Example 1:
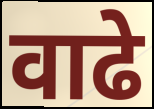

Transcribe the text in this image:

वाढे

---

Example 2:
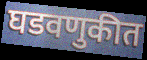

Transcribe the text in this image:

घडवणुकीत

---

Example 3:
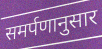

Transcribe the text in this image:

समर्पणानुसार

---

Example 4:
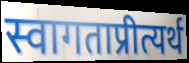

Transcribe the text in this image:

स्वागताप्रीत्यर्थ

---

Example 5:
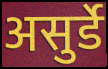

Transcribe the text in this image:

असुर्डे